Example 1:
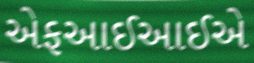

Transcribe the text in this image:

એફઆઈઆઈએ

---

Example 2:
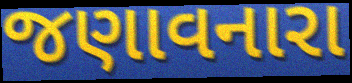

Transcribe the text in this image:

જણાવનારા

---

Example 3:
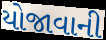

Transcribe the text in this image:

યોજાવાની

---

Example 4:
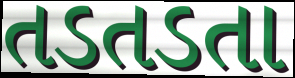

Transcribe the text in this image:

તડતડતા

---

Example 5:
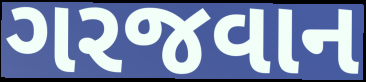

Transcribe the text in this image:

ગરજવાન